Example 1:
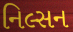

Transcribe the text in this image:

નિલ્સન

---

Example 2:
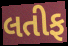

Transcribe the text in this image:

લતીફ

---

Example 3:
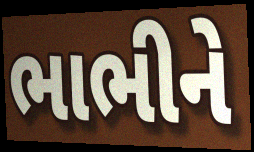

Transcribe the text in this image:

ભાભીને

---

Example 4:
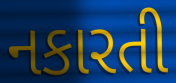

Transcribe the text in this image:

નકારતી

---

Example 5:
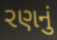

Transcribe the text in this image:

રણનું